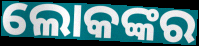
ଲୋକଙ୍କର